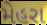
મેહરા